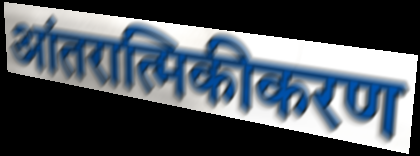
आंतरात्मिकीकरण